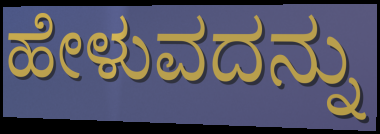
ಹೇಳುವದನ್ನು